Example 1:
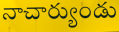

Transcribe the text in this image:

నాచార్యుండు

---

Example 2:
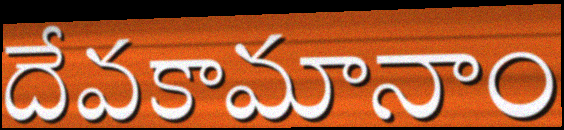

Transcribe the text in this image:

దేవకామానాం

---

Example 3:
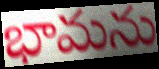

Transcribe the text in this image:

భామను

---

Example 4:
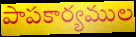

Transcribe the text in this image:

పాపకార్యముల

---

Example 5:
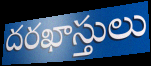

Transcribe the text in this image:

దరఖాస్తులు